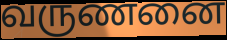
வருணனை